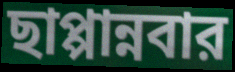
ছাপ্পান্নবার